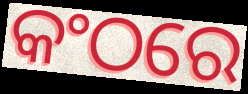
କଂଠରେ